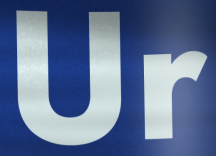
Ur